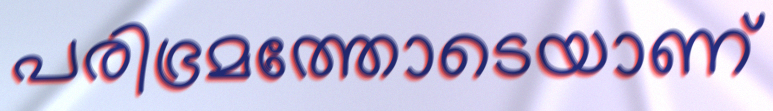
പരിഭ്രമത്തോടെയാണ്